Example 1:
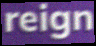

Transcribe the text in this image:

reign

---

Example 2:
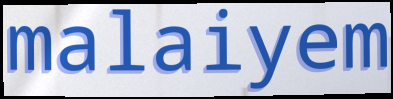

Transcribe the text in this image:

malaiyem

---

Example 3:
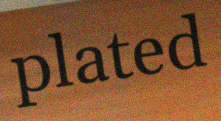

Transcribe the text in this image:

plated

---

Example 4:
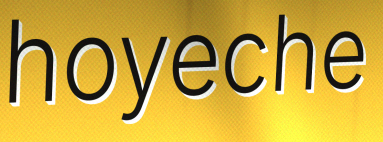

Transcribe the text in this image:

hoyeche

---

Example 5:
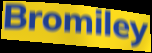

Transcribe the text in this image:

Bromiley